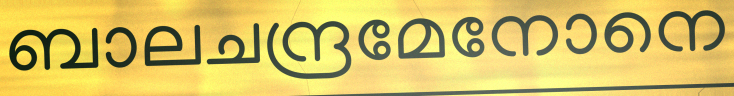
ബാലചന്ദ്രമേനോനെ